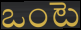
ఒంటె